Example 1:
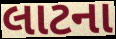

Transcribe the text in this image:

લાટના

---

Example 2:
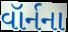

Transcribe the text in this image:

વૉર્નના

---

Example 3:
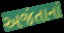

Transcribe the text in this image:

અજંતાનાં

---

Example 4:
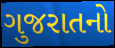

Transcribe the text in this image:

ગુજરાતનો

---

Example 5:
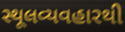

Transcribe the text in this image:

સ્થૂલવ્યવહારથી